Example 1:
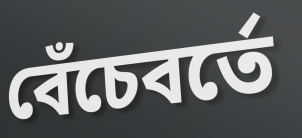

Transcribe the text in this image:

বেঁচেবর্তে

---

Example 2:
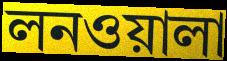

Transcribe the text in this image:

লনওয়ালা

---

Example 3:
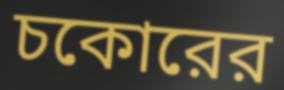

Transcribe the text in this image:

চকোরের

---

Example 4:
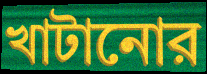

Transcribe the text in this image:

খাটানোর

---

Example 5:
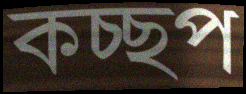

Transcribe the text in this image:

কচ্ছপ